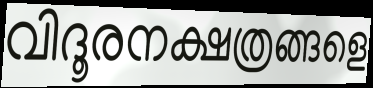
വിദൂരനക്ഷത്രങ്ങളെ